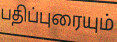
பதிப்புரையும்